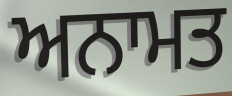
ਅਨਾਮਤ